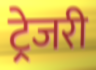
ट्रेजरी